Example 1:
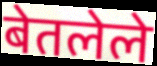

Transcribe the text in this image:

बेतलेले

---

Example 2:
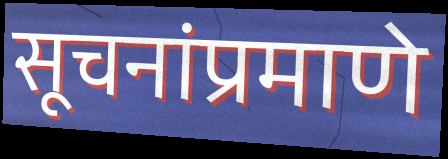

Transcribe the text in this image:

सूचनांप्रमाणे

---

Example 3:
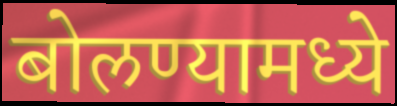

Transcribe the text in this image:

बोलण्यामध्ये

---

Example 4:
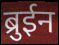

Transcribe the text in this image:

ब्रुईन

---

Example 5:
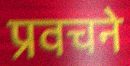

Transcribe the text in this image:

प्रवचने